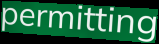
permitting